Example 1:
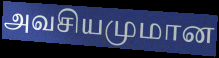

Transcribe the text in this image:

அவசியமுமான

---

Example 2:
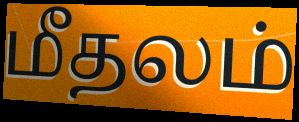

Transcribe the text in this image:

மீதலம்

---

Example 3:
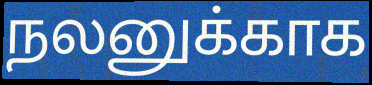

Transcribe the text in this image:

நலனுக்காக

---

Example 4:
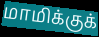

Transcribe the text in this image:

மாமிக்குக்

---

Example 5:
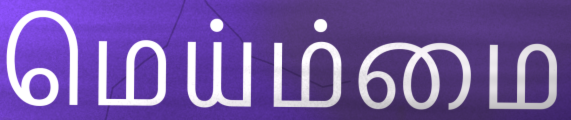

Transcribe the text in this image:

மெய்ம்மை